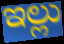
ఇల్లు